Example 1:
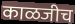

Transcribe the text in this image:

काळजीच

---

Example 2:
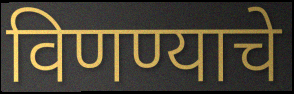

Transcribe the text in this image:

विणण्याचे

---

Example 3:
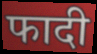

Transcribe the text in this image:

फादी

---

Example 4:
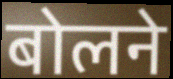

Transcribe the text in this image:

बोलने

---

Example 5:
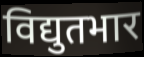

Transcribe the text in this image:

विद्युतभार